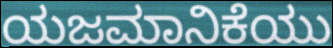
ಯಜಮಾನಿಕೆಯು